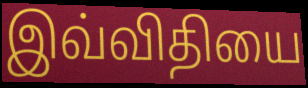
இவ்விதியை